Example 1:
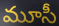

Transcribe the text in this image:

మూసీ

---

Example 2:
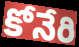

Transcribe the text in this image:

కోనేరి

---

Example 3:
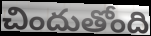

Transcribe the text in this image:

చిందుతోంది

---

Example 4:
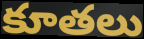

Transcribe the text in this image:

కూతలు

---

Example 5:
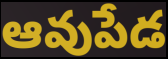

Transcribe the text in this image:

ఆవుపేడ